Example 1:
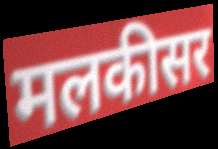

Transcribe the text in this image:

मलकीसर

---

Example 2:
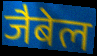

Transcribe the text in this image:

जैबेल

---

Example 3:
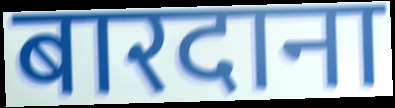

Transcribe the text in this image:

बारदाना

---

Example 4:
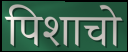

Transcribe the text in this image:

पिशाचो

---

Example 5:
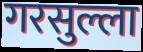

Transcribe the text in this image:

गरसुल्ला